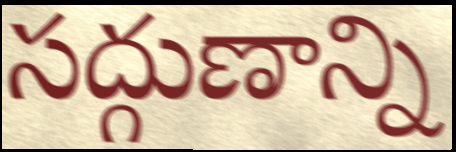
సద్గుణాన్ని